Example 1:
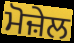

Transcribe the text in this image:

ਮੋਜ਼ੇਲ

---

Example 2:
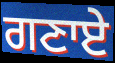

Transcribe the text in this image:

ਗਣਾਏ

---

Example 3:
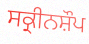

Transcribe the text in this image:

ਸਕ੍ਰੀਨਸ਼ੌਪ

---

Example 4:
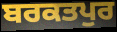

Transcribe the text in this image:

ਬਰਕਤਪੁਰ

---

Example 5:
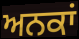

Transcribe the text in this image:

ਅਨਕਾਂ